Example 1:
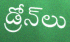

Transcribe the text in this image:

డ్రోన్‌లు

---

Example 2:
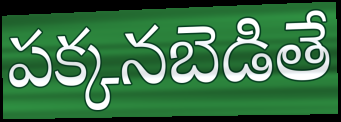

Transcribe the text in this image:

పక్కనబెడితే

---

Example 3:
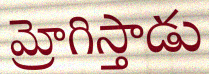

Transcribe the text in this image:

మ్రోగిస్తాడు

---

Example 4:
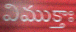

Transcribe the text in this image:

విముక్తాః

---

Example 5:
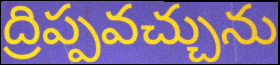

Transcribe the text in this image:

ద్రిప్పవచ్చును